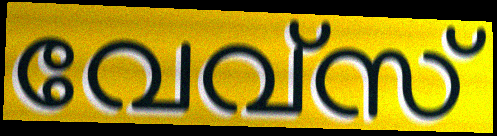
വേവ്സ്